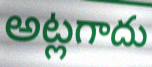
అట్లగాదు